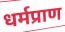
धर्मप्राण